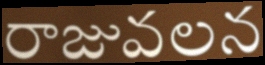
రాజువలన